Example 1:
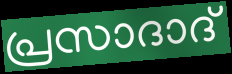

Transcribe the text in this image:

പ്രസാദാദ്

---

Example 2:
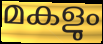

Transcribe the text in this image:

മകളും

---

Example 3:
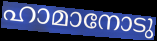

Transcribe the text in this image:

ഹാമാനോടു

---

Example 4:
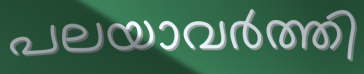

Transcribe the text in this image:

പലയാവർത്തി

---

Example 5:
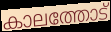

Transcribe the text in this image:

കാലത്തോട്